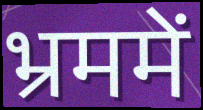
भ्रममें